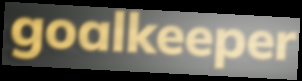
goalkeeper